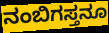
ನಂಬಿಗಸ್ತನೂ